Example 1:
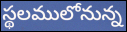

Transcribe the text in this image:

స్థలములోనున్న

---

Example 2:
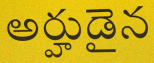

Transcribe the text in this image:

అర్హుడైన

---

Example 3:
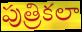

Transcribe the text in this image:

పుత్రికలా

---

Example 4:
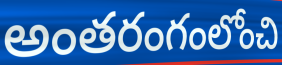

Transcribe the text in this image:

అంతరంగంలోంచి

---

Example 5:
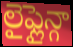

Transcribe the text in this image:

లైఫ్లైన్గా